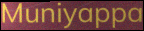
Muniyappa